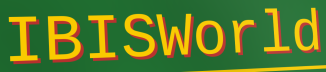
IBISWorld